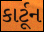
કાર્ટૂન